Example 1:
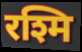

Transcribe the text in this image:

रश्मि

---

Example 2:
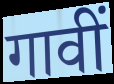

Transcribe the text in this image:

गावीं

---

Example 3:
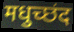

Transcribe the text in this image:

मधुच्छंद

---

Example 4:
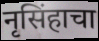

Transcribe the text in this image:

नृसिंहाचा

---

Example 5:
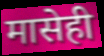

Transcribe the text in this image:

मासेही